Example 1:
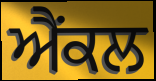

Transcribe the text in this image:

ਐਂਕਲ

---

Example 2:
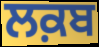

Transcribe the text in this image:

ਲਕ਼ਬ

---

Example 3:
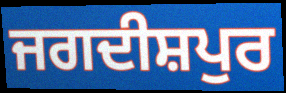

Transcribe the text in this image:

ਜਗਦੀਸ਼ਪੁਰ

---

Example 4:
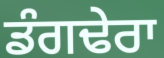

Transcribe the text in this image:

ਡੰਗਢੇਰਾ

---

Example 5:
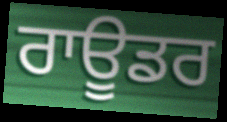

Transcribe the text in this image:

ਰਾਊਡਰ